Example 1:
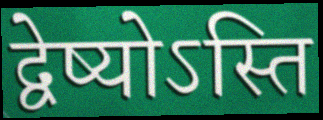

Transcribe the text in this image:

द्वेष्योऽस्ति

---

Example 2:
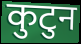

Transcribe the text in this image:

कुटुन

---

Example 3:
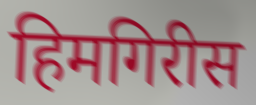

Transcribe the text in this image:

हिमगिरीस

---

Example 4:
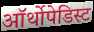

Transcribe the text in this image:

ऑर्थोपेडिस्ट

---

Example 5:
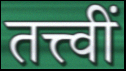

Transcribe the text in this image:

तत्त्वीं